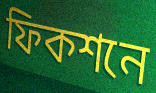
ফিকশনে